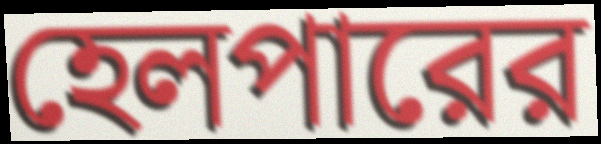
হেলপারের